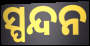
ସ୍ପନ୍ଦନ